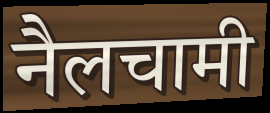
नैलचामी